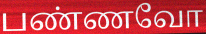
பண்ணவோ